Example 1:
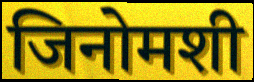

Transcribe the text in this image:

जिनोमशी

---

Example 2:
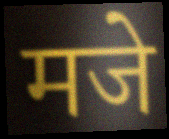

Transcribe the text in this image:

मजे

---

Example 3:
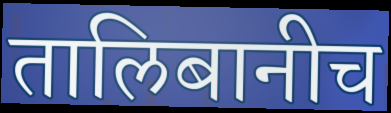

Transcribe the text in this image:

तालिबानीच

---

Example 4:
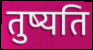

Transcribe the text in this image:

तुष्यति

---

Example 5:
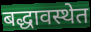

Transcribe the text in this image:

बद्धावस्थेत